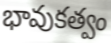
భావుకత్వం